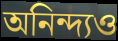
অনিন্দ্যও